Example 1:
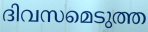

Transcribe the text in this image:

ദിവസമെടുത്ത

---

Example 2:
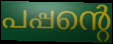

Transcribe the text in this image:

പപ്പന്റെ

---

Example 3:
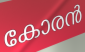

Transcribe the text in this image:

കോരൻ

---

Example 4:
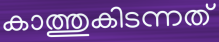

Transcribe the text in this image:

കാത്തുകിടന്നത്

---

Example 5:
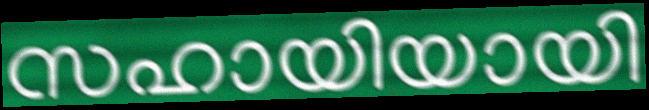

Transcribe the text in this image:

സഹായിയായി